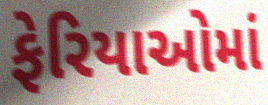
ફેરિયાઓમાં